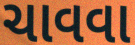
ચાવવા